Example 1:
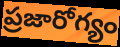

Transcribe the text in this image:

ప్రజారోగ్యం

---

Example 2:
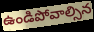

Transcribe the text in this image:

ఉండిపోవాల్సిన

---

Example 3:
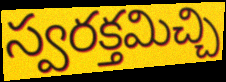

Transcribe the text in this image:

స్వరక్తమిచ్చి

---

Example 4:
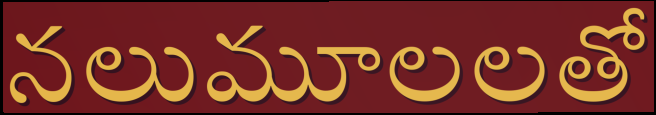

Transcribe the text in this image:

నలుమూలలతో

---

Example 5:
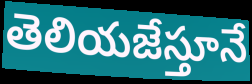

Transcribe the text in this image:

తెలియజేస్తూనే